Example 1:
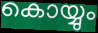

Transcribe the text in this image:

കൊയ്യും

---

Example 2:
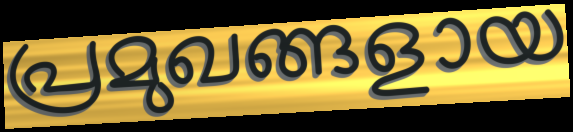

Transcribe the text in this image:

പ്രമുഖങ്ങളായ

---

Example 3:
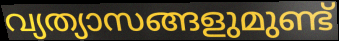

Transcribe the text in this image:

വ്യത്യാസങ്ങളുമുണ്ട്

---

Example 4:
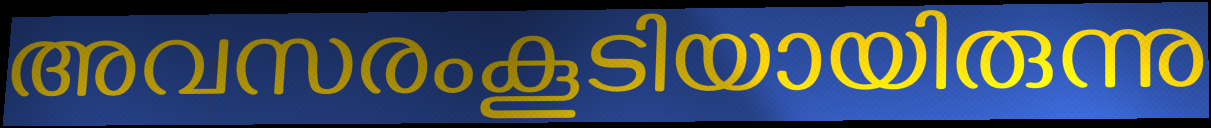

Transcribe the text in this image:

അവസരംകൂടിയായിരുന്നു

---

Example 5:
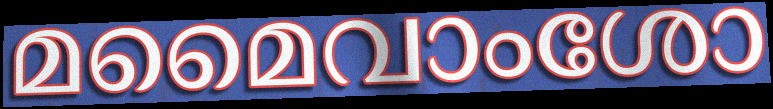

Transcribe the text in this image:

മമൈവാംശോ